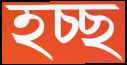
হচ্ছ